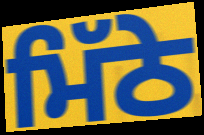
ਮਿੱਠੇ